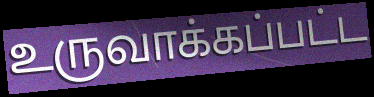
உருவாக்கப்பட்ட